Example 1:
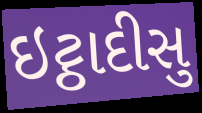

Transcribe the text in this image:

ઇટ્ઠાદીસુ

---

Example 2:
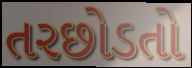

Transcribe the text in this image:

તરછોડતો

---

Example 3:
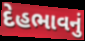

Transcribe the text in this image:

દેહભાવનું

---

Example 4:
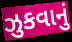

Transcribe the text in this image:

ઝુકવાનું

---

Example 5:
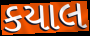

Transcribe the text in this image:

કયાલ